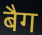
बैग